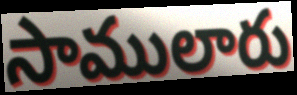
సాములారు